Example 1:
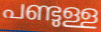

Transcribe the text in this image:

പണ്ടുള്ള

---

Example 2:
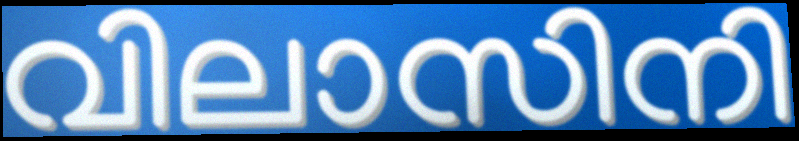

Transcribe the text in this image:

വിലാസിനി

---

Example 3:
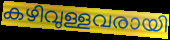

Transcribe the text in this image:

കഴിവുള്ളവരായി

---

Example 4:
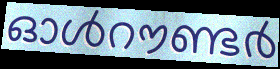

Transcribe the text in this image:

ഓൾറൗണ്ടർ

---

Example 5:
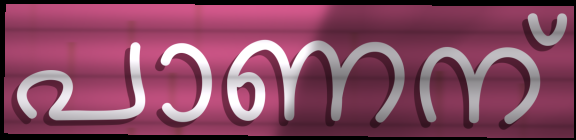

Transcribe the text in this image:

പാണന്